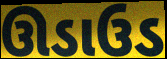
ઊડાઉડ